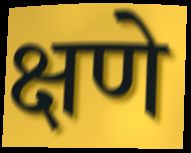
क्षणे